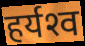
हर्यश्व